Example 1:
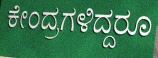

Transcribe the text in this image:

ಕೇಂದ್ರಗಳಿದ್ದರೂ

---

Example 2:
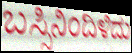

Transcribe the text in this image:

ಬಸ್ಸಿನಿಂದಿಳಿದು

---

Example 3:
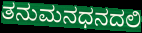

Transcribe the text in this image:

ತನುಮನಧನದಲಿ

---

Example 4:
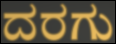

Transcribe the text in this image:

ದರಗು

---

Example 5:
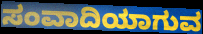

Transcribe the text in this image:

ಸಂವಾದಿಯಾಗುವ